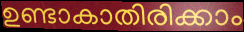
ഉണ്ടാകാതിരിക്കാം